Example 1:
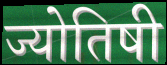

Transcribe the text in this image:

ज्योतिषी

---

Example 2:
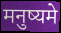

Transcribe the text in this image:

मनुष्यमे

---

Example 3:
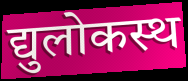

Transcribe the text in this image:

द्युलोकस्थ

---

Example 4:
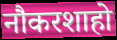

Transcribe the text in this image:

नौकरशाहो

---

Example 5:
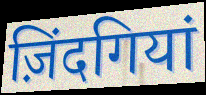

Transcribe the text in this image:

ज़िंदगियां